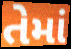
તેમાં